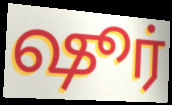
ஷூர்